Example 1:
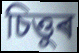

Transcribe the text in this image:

চিত্তুৰ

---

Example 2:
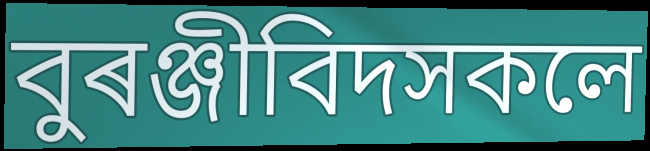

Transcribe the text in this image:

বুৰঞ্জীবিদসকলে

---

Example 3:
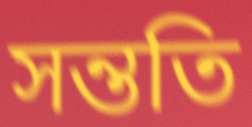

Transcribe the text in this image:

সন্ততি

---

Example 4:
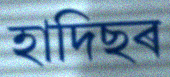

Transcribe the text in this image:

হাদিছৰ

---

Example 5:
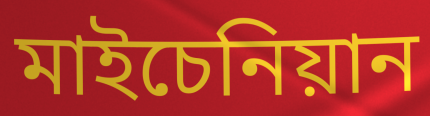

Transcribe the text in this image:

মাইচেনিয়ান